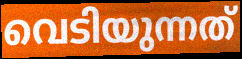
വെടിയുന്നത്